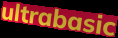
ultrabasic